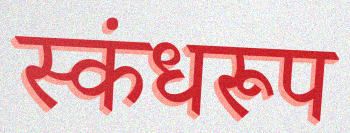
स्कंधरूप